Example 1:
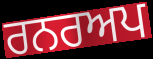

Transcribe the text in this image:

ਰਨਰਅਪ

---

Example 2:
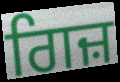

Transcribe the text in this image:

ਗਿਜ਼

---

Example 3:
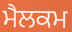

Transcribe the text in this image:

ਮੈਲਕਮ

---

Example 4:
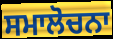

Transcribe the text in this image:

ਸਮਾਲੋਚਨਾ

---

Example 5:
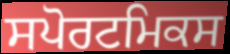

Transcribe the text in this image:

ਸਪੋਰਟਮਿਕਸ